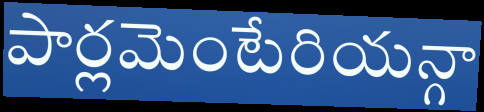
పార్లమెంటేరియన్గా